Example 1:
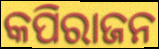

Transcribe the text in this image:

କପିରାଜନ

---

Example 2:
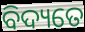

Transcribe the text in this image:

ବିଦ୍ୟତେ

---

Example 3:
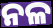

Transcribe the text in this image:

ନଳ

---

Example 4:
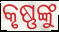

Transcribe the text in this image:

କୃଷ୍ଣଙ୍କୁ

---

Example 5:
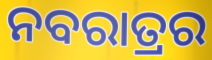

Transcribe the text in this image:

ନବରାତ୍ରର